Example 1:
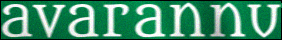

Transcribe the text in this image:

avarannu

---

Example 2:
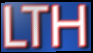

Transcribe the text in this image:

LTH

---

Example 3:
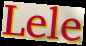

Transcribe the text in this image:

Lele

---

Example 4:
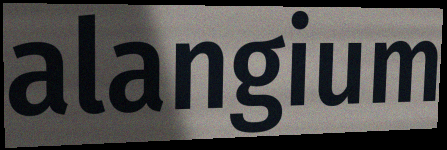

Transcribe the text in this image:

alangium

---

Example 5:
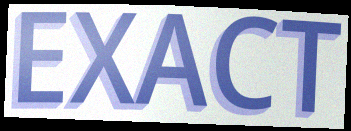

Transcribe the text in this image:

EXACT